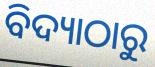
ବିଦ୍ୟାଠାରୁ